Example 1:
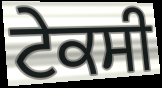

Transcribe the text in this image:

ਟੇਕਸੀ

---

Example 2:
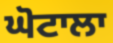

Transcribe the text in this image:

ਘੋਟਾਲਾ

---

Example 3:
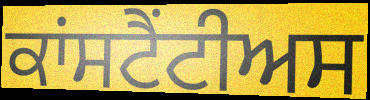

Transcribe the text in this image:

ਕਾਂਸਟੈਂਟੀਅਸ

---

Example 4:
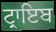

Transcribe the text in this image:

ਟ੍ਰਾਇਬ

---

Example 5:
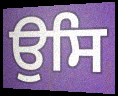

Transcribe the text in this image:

ਉਸਿ